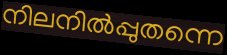
നിലനിൽപ്പുതന്നെ